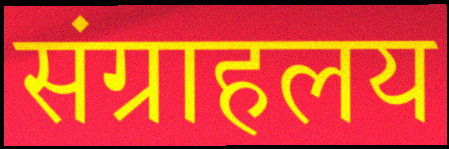
संग्राहलय